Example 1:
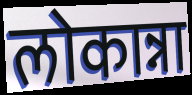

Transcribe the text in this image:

लोकान्ना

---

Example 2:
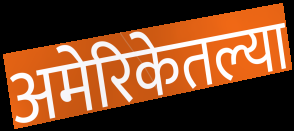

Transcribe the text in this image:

अमेरिकेतल्या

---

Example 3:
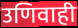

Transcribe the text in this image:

उणिवाही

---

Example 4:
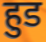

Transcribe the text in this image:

हुड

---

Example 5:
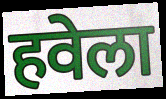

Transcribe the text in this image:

हवेला